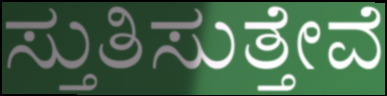
ಸ್ತುತಿಸುತ್ತೇವೆ